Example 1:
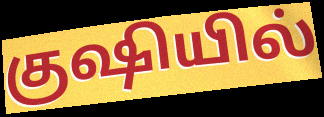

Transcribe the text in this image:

குஷியில்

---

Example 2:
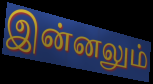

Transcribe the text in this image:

இன்னலும்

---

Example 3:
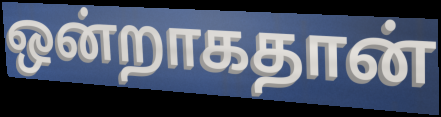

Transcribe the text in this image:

ஒன்றாகதான்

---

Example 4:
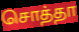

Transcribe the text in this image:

சொத்தா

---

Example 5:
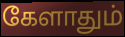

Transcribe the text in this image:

கேளாதும்